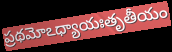
ప్రథమోఽధ్యాయఃతృతీయం